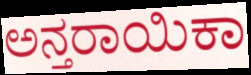
ಅನ್ತರಾಯಿಕಾ